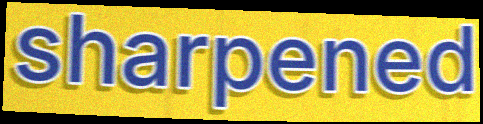
sharpened